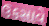
ઉકસાવે